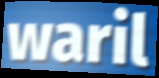
waril